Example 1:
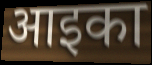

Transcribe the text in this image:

आइका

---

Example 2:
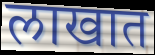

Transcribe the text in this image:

लाखात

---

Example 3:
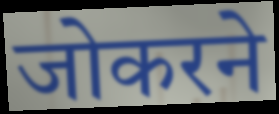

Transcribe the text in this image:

जोकरने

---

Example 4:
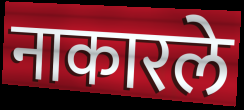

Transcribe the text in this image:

नाकारले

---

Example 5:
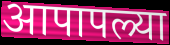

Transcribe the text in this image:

आपापल्या